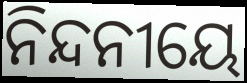
ନିନ୍ଦନୀୟେ